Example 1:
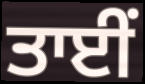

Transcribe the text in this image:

ਤਾਈਂ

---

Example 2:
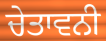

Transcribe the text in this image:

ਚੇਤਾਵਨੀ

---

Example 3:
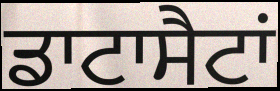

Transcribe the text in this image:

ਡਾਟਾਸੈਟਾਂ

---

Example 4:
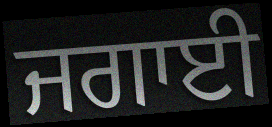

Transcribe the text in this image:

ਜਗਾਈ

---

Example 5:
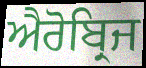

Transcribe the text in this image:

ਐਰੋਬ੍ਰਿਜ